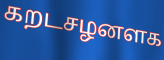
கறடசழனளக